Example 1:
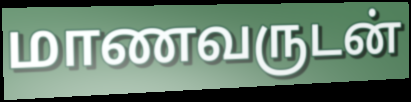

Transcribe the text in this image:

மாணவருடன்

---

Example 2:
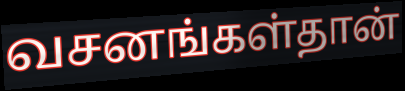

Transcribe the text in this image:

வசனங்கள்தான்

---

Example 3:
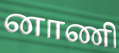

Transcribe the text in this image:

னாணி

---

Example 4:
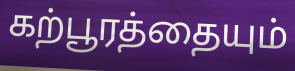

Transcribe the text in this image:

கற்பூரத்தையும்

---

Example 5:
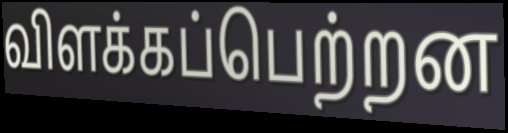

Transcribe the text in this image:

விளக்கப்பெற்றன